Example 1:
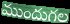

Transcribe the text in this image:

ముందుగల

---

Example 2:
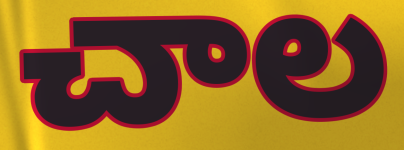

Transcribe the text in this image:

చాల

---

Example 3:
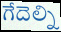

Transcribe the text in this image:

గేదెల్ని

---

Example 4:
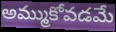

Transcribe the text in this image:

అమ్ముకోవడమే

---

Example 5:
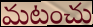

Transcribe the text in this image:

మటంచు